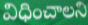
విధించాలని